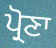
ਪ੍ਰੋਣਾ